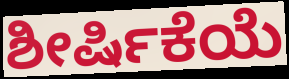
ಶೀರ್ಷಿಕೆಯೆ